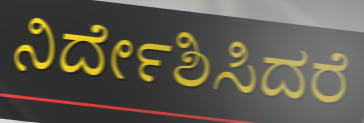
ನಿರ್ದೇಶಿಸಿದರೆ